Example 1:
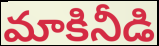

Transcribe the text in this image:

మాకినీడి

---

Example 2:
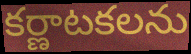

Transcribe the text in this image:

కర్ణాటకలను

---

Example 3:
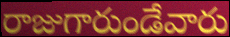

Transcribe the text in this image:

రాజుగారుండేవారు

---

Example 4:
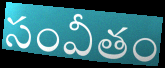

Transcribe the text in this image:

సంవీతం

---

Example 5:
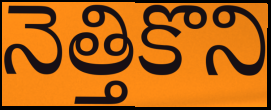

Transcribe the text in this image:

నెత్తికొని